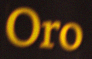
Oro